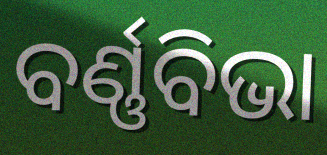
ବର୍ଣ୍ଣବିଭା